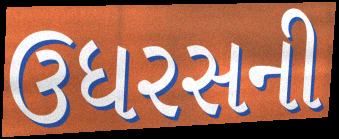
ઉધરસની